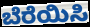
ಬೆರೆಯಿಸಿ